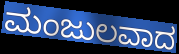
ಮಂಜುಲವಾದ